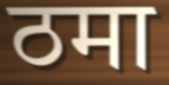
ठमा